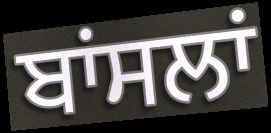
ਬਾਂਸਲਾਂ